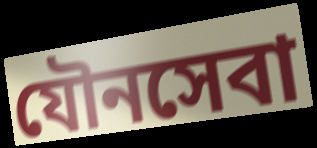
যৌনসেবা